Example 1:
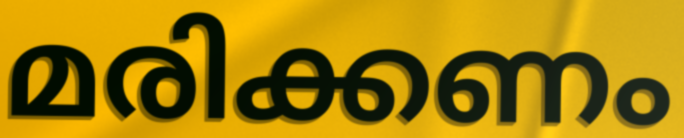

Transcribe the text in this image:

മരിക്കണം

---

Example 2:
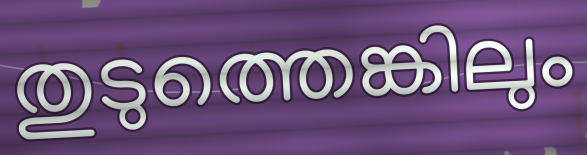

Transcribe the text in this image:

തുടുത്തെങ്കിലും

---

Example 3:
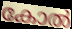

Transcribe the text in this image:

കോൽ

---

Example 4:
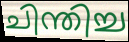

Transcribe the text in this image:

ചിന്തിച്ച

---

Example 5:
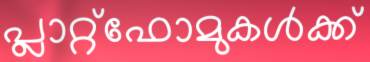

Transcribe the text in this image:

പ്ലാറ്റ്ഫോമുകൾക്ക്